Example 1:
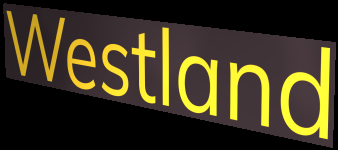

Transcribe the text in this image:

Westland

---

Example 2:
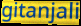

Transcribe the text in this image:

gitanjali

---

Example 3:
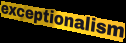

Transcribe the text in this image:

exceptionalism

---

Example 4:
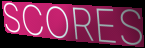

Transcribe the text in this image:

SCORES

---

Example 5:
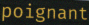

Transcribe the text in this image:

poignant